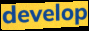
develop